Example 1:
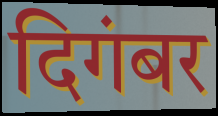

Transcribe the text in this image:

दिगंबर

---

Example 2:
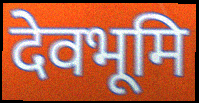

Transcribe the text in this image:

देवभूमि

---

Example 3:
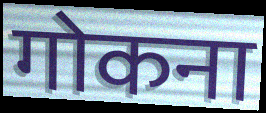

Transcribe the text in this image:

गोकना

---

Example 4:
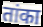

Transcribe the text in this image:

तांका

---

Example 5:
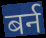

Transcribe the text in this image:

बर्न